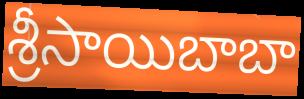
శ్రీసాయిబాబా